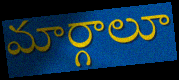
మార్గాలూ